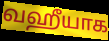
வஹீயாக